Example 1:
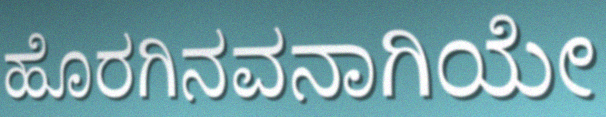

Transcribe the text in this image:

ಹೊರಗಿನವನಾಗಿಯೇ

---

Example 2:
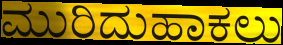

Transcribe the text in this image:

ಮುರಿದುಹಾಕಲು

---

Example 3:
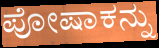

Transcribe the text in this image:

ಪೋಷಾಕನ್ನು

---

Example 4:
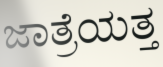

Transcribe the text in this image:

ಜಾತ್ರೆಯತ್ತ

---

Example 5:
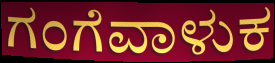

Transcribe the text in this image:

ಗಂಗೆವಾಳುಕ